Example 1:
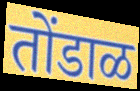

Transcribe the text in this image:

तोंडाळ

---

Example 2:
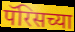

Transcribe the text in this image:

पॅरिसच्या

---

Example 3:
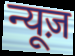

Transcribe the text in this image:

न्यूज़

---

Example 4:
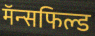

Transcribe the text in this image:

मॅन्सफिल्ड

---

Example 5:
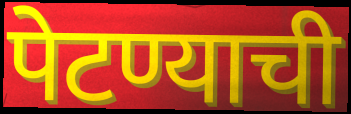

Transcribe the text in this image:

पेटण्याची